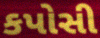
કપોસી